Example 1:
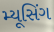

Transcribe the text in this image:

મ્યૂસિંગ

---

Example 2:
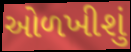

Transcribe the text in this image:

ઓળખીશું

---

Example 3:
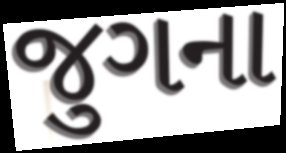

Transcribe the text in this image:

જુગના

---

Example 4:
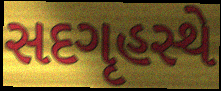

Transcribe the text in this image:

સદગૃહસ્થે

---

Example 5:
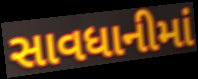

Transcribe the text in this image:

સાવધાનીમાં